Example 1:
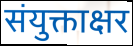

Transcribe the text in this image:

संयुक्ताक्षर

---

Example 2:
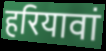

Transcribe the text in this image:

हरियावां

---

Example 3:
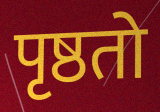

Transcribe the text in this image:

पृष्ठतो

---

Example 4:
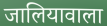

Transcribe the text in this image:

जालियावाला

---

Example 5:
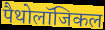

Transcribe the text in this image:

पैथोलॉजिकल